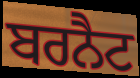
ਬਰਨੈਟ